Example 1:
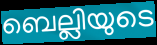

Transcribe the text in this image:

ബെല്ലിയുടെ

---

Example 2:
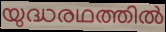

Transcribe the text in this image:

യുദ്ധരഥത്തിൽ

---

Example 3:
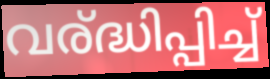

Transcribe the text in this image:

വര്ദ്ധിപ്പിച്ച്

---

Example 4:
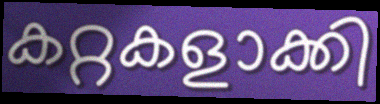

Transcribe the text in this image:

കറ്റകളാക്കി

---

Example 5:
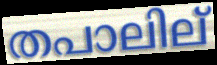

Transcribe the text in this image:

തപാലില്